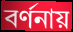
বর্ণনায়